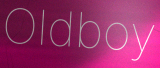
Oldboy